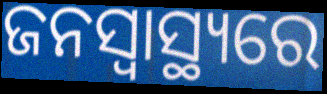
ଜନସ୍ଵାସ୍ଥ୍ୟରେ